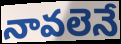
నావలెనే